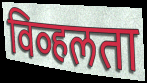
विव्हलता